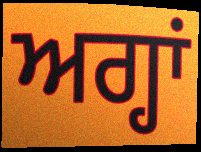
ਅਗ੍ਹਾਂ